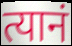
त्यानं